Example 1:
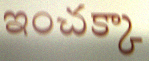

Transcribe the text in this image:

ఇంచక్కా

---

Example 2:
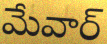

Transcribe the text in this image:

మేవార్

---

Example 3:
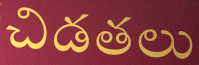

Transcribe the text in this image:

చిడతలు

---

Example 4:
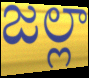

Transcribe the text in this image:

జల్లా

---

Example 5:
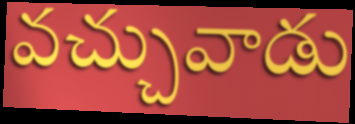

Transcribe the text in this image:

వచ్చువాడు